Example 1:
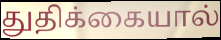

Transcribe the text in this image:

துதிக்கையால்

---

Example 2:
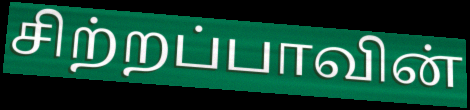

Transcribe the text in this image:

சிற்றப்பாவின்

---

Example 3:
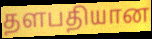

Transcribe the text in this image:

தளபதியான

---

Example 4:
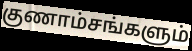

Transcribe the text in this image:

குணாம்சங்களும்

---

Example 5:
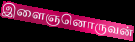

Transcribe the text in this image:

இளைஞனொருவன்